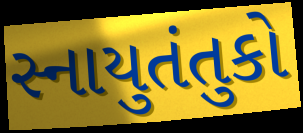
સ્નાયુતંતુકો